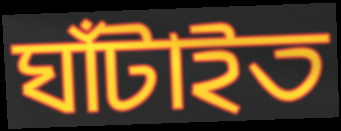
ঘাঁটাইত